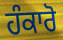
ਹੰਕਾਰੋ